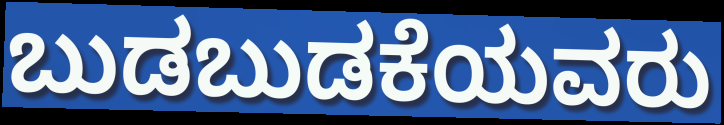
ಬುಡಬುಡಕೆಯವರು